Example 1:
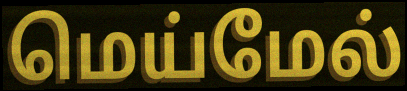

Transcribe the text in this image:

மெய்மேல்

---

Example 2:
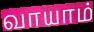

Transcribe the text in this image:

வாயாம்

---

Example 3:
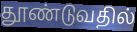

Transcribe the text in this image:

தூண்டுவதில்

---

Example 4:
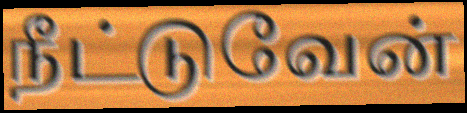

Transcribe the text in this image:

நீட்டுவேன்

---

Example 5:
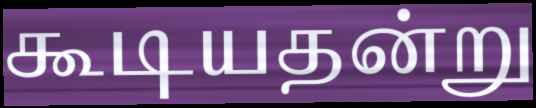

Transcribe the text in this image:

கூடியதன்று